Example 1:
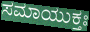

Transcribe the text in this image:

ಸಮಾಯುಕ್ತಃ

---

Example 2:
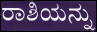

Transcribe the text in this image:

ರಾಶಿಯನ್ನು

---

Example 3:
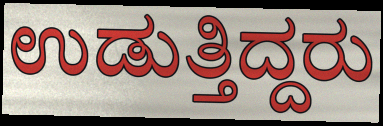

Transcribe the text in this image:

ಉಡುತ್ತಿದ್ದರು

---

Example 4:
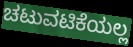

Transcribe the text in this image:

ಚಟುವಟಿಕೆಯಲ್ಲ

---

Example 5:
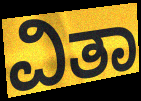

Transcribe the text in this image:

ವಿತಾ